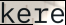
kere